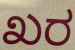
ಖರ